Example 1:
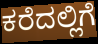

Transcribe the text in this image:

ಕರೆದಲ್ಲಿಗೆ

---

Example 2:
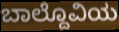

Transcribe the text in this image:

ಬಾಲ್ದೊವಿಯ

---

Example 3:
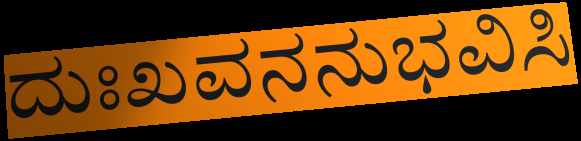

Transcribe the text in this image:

ದುಃಖವನನುಭವಿಸಿ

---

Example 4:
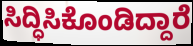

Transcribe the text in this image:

ಸಿದ್ಧಿಸಿಕೊಂಡಿದ್ದಾರೆ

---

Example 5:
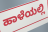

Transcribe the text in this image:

ಹಾಳೆಯಲ್ಲಿ